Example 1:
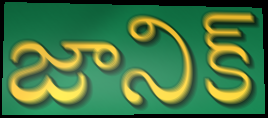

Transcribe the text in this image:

జానిక్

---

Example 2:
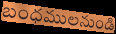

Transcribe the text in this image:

బంధములనుండి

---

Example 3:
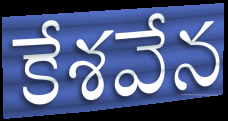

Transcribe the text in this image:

కేశవేన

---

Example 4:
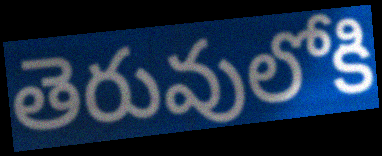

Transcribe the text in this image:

తెరువులోకి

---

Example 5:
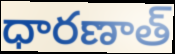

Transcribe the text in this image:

ధారణాత్